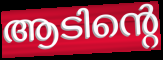
ആടിന്റെ